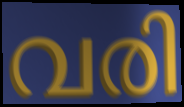
വരി